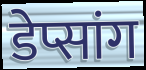
डेप्सांग